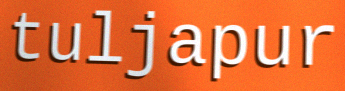
tuljapur